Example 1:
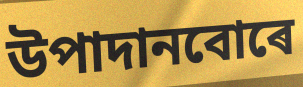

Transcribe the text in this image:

উপাদানবোৰে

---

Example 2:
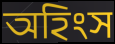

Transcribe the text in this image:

অহিংস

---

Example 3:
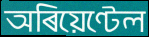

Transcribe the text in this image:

অৰিয়েণ্টেল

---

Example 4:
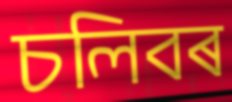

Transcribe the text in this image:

চলিবৰ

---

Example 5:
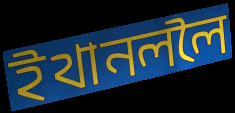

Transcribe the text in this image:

ইথানললৈ